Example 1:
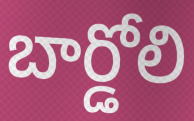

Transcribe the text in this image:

బార్డోలి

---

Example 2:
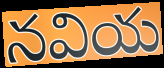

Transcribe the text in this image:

నవియ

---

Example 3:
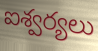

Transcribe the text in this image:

ఐశ్వర్యలు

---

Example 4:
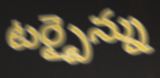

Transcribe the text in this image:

టర్బైన్ను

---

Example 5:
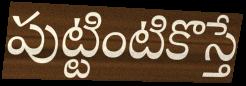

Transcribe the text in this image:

పుట్టింటికొస్తే